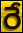
రే